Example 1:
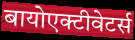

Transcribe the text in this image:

बायोएक्टीवेटर्स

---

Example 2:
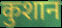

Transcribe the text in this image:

कुशान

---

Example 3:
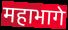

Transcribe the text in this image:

महाभागे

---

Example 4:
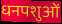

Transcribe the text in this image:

धनपशुओं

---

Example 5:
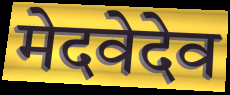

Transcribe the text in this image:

मेदवेदेव